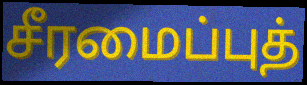
சீரமைப்புத்